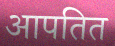
आपतित